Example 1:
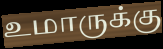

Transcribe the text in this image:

உமாருக்கு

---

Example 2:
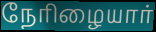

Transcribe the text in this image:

நேரிழையார்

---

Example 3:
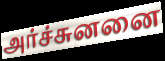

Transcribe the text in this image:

அர்ச்சுனனை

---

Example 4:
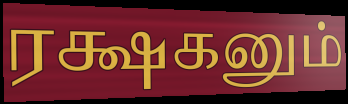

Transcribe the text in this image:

ரக்ஷகனும்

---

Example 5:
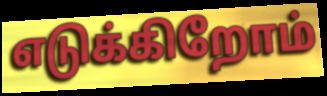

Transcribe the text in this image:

எடுக்கிறோம்